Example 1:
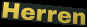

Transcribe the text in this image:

Herren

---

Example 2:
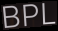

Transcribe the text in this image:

BPL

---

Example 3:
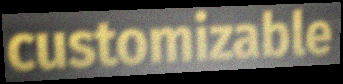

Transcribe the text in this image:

customizable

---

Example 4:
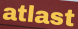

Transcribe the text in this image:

atlast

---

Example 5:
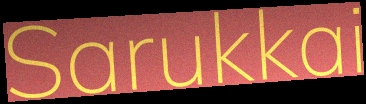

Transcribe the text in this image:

Sarukkai